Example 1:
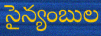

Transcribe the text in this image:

సైన్యంబుల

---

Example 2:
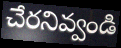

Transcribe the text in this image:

చేరనివ్వండి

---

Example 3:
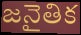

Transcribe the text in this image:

జనైతిక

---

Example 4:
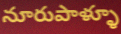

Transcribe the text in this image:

నూరుపాళ్ళూ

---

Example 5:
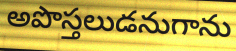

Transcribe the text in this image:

అపొస్తలుడనుగాను